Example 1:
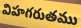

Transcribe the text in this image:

విహగరుతము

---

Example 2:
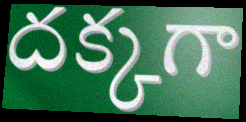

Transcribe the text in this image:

దక్కగా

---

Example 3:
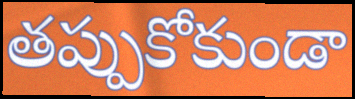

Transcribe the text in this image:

తప్పుకోకుండా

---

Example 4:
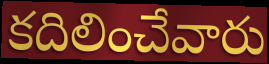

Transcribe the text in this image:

కదిలించేవారు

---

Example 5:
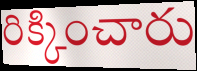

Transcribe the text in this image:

రిక్కించారు